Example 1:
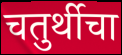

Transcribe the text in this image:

चतुर्थीचा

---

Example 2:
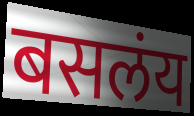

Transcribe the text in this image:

बसलंय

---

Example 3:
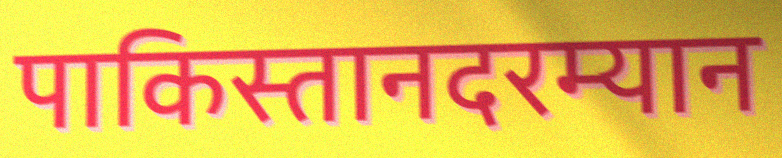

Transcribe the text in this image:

पाकिस्तानदरम्यान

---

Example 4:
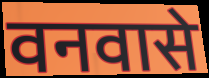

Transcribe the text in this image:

वनवासे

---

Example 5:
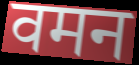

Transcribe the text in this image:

वमन